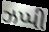
ઝપ્પી